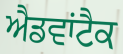
ਐਡਵਾਂਟੈਕ